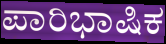
ಪಾರಿಭಾಷಿಕ